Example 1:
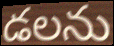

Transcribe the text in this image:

డలను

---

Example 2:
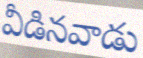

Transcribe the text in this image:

వీడినవాడు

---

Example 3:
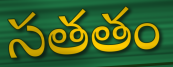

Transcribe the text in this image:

సతతం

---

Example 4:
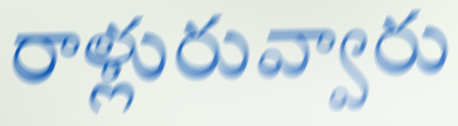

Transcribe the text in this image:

రాళ్లురువ్వారు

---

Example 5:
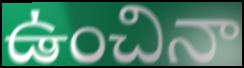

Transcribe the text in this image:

ఉంచినా